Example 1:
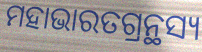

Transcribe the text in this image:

ମହାଭାରତଗ୍ରନ୍ଥସ୍ୟ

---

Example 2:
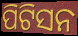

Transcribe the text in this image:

ପିଟିସନ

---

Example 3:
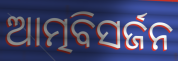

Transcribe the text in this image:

ଆତ୍ମବିସର୍ଜନ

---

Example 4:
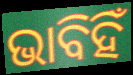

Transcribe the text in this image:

ଭାବିହିଁ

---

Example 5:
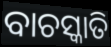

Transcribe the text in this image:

ବାଚସ୍କାତି